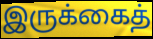
இருக்கைத்